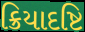
ક્રિયાદષ્ટિ